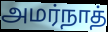
அமர்நாத்